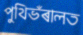
পুথিভঁৰালত